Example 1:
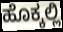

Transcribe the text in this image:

ಹೊಕ್ಕಲ್ಲಿ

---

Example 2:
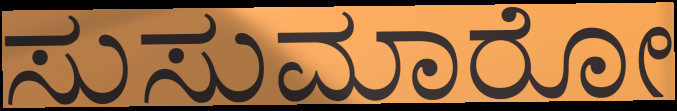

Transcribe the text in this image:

ಸುಸುಮಾರೋ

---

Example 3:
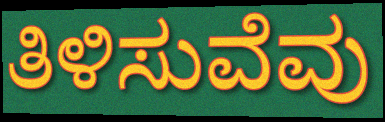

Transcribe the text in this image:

ತಿಳಿಸುವೆವು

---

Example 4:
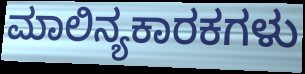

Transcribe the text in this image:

ಮಾಲಿನ್ಯಕಾರಕಗಳು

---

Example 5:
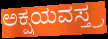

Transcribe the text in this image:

ಅಕ್ಷಯವಸ್ತ್ರ